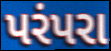
પરંપરા